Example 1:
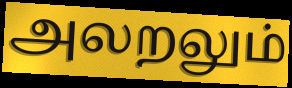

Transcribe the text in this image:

அலறலும்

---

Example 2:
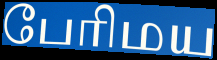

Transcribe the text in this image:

பேரிமய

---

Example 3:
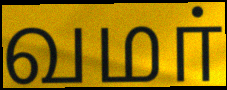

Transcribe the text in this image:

வமர்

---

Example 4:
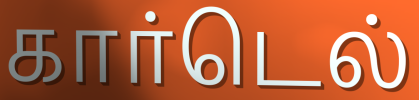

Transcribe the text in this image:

கார்டெல்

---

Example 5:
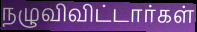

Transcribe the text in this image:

நழுவிவிட்டார்கள்